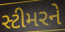
સ્ટીમરને